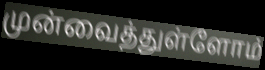
முன்வைத்துள்ளோம்